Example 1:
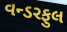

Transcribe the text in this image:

વન્ડરફુલ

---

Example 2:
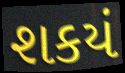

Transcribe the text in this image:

શકયં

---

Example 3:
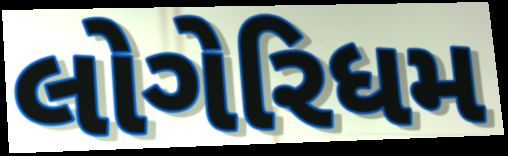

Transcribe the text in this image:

લોગેરિધમ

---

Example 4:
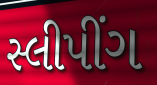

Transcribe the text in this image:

સ્લીપીંગ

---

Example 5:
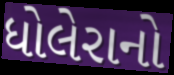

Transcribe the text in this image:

ધોલેરાનો